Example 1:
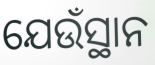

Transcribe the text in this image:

ଯେଉଁସ୍ଥାନ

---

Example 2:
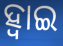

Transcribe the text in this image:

ହ୍ଵାଇ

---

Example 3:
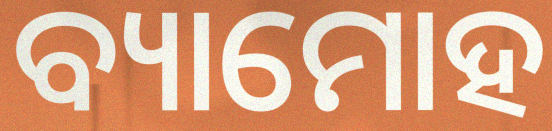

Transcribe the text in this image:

ବ୍ୟାମୋହ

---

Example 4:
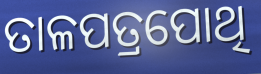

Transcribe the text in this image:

ତାଳପତ୍ରପୋଥି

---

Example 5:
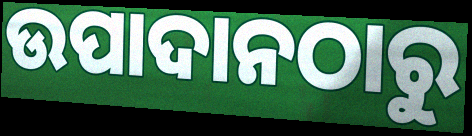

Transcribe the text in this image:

ଉପାଦାନଠାରୁ